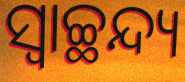
ସ୍ୱାଚ୍ଛନ୍ଦ୍ୟ